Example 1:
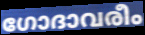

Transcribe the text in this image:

ഗോദാവരീം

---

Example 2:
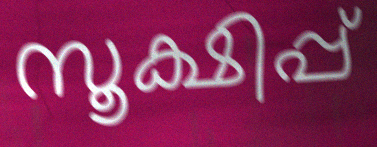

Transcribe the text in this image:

സൂക്ഷിപ്പ്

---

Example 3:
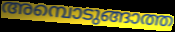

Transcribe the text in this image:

അമ്പൊടുങ്ങാത്ത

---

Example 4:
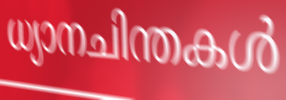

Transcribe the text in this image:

ധ്യാനചിന്തകൾ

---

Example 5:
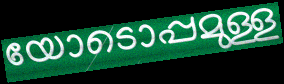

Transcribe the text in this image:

യോടൊപ്പമുള്ള